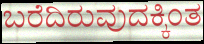
ಬರೆದಿರುವುದಕ್ಕಿಂತ